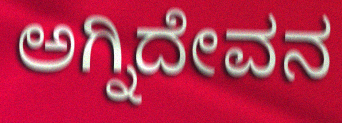
ಅಗ್ನಿದೇವನ